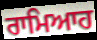
ਰਾਮਿਆਹ